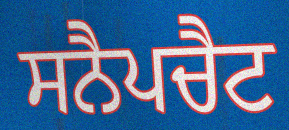
ਸਨੈਪਚੈਟ